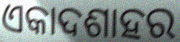
ଏକାଦଶାହର